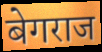
बेगराज